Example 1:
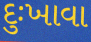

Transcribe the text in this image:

દુઃખાવા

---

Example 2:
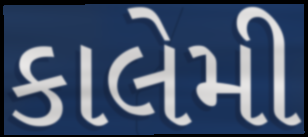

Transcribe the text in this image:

કાલેમી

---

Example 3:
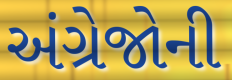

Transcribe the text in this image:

અંગ્રેજોની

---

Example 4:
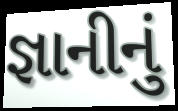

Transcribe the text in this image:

જ્ઞાનીનું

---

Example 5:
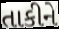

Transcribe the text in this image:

તાકીને